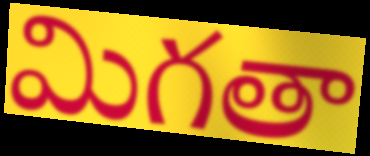
మిగతా